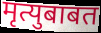
मृत्युबाबत